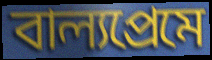
বাল্যপ্রেমে